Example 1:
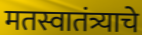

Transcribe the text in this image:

मतस्वातंत्र्याचे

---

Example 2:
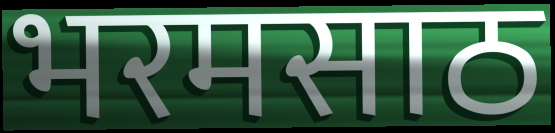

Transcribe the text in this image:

भरमसाठ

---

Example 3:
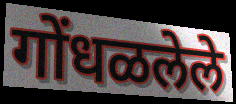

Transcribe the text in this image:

गोंधळलेले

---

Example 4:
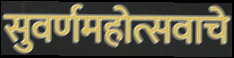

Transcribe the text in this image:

सुवर्णमहोत्सवाचे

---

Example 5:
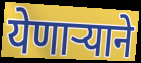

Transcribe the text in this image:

येणाऱ्याने